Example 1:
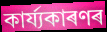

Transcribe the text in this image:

কাৰ্য্যকাৰণৰ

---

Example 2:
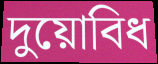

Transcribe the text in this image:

দুয়োবিধ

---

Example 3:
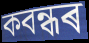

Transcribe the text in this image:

কবন্ধৰ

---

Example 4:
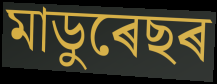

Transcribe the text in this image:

মাডুৰেছৰ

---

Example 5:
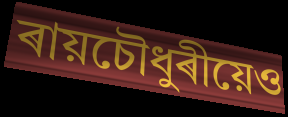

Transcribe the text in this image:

ৰায়চৌধুৰীয়েও